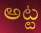
అట్ట